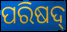
ପରିଷଦ୍